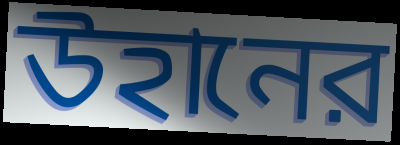
উহানের